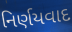
નિર્ણયવાદ